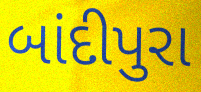
બાંદીપુરા